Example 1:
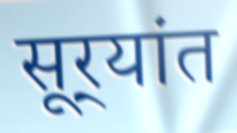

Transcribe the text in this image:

सूर्यांत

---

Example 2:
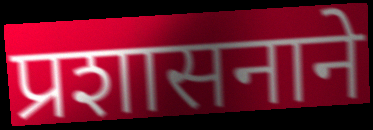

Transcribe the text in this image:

प्रशासनाने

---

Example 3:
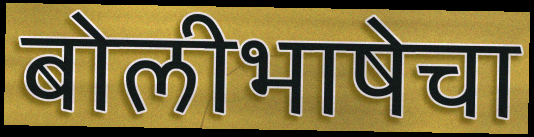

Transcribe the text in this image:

बोलीभाषेचा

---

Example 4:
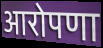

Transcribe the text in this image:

आरोपणा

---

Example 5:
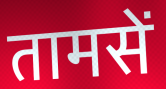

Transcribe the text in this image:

तामसें